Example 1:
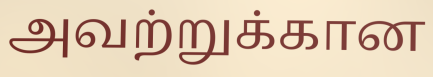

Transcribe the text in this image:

அவற்றுக்கான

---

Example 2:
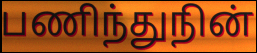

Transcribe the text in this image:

பணிந்துநின்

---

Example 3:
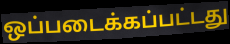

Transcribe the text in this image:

ஒப்படைக்கப்பட்டது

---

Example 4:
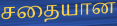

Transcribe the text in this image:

சதையான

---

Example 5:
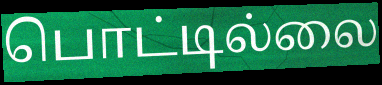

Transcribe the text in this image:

பொட்டில்லை